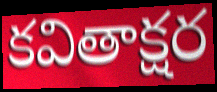
కవితాక్షర